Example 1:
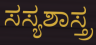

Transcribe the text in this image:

ಸಸ್ಯಶಾಸ್ತ್ರ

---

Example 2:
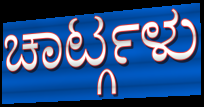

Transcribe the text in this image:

ಚಾರ್ಟ್ಗಳು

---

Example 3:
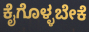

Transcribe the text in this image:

ಕೈಗೊಳ್ಳಬೇಕೆ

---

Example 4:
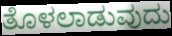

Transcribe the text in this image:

ತೊಳಲಾಡುವುದು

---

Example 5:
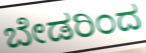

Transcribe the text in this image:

ಬೇಡರಿಂದ